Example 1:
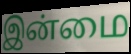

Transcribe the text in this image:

இன்மை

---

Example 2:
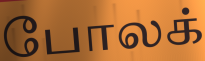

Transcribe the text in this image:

போலக்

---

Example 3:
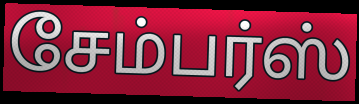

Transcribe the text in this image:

சேம்பர்ஸ்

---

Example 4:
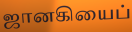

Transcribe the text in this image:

ஜானகியைப்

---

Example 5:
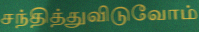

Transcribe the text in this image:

சந்தித்துவிடுவோம்